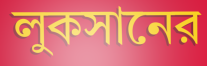
লুকসানের